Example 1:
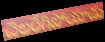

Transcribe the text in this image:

చెలరేగిపోయాడు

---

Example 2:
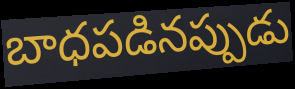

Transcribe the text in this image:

బాధపడినప్పుడు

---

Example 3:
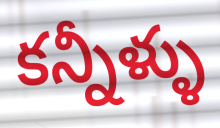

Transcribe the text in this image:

కన్నీళ్ళు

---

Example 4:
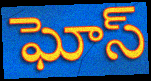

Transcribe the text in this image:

ఘోస్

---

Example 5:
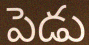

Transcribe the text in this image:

పెడు